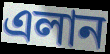
এলান